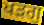
ਖੜਗੁ